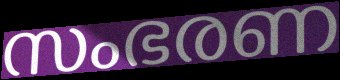
സംഭരണ